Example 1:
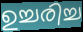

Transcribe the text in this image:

ഉച്ചരിച്ച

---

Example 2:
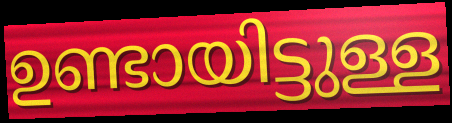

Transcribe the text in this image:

ഉണ്ടായിട്ടുള്ള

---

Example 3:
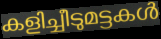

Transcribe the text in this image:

കളിച്ചീടുമട്ടകൾ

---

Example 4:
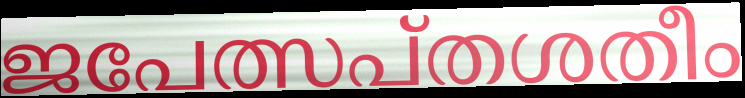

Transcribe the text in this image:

ജപേത്സപ്തശതീം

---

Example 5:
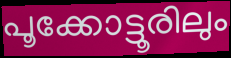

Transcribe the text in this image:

പൂക്കോട്ടൂരിലും